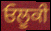
ਓਲੂਕੀ